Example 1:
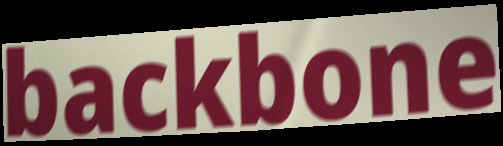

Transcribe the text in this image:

backbone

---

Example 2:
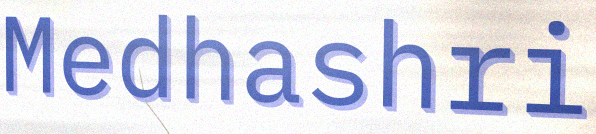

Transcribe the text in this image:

Medhashri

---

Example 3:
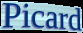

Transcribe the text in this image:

Picard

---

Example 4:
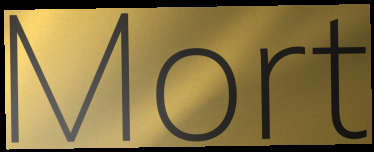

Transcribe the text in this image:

Mort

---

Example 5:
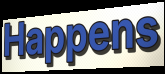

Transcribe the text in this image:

Happens